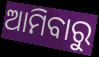
ଆମିବାରୁ